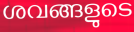
ശവങ്ങളുടെ